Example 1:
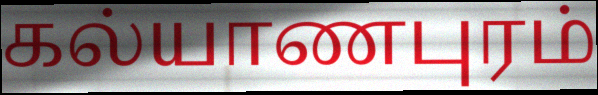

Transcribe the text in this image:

கல்யாணபுரம்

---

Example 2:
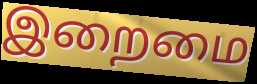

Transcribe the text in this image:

இறைமை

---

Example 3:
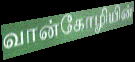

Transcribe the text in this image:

வான்கோழியின்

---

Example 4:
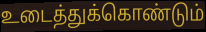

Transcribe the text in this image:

உடைத்துக்கொண்டும்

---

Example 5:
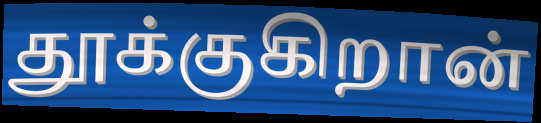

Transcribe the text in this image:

தூக்குகிறான்